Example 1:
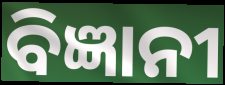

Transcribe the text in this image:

ବିଜ୍ଞାନୀ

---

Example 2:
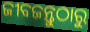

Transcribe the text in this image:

ଜୀବଜନ୍ତୁଠାରୁ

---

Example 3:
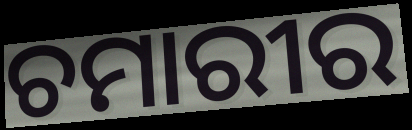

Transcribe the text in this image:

ଚମାରୀର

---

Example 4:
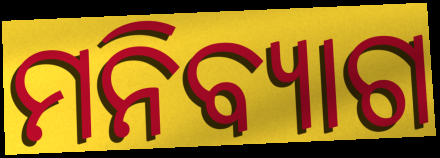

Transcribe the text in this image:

ମନିବ୍ୟାଗ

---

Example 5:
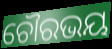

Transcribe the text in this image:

ଚୌରଭୟ